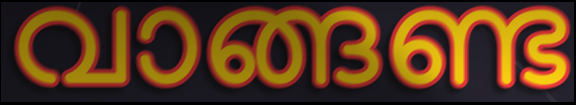
വാങ്ങണ്ട